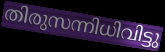
തിരുസന്നിധിവിട്ടു